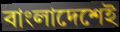
বাংলাদেশেই